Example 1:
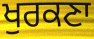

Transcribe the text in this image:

ਖੁਰਕਣਾ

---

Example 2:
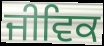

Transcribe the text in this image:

ਜੀਵਿਕ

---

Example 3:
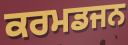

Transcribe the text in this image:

ਕਰਮਡਜਨ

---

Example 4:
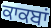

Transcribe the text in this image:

ਕਾਕਬਾਂ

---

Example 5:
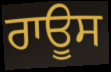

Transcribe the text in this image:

ਰਾਊਸ